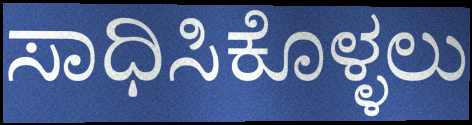
ಸಾಧಿಸಿಕೊಳ್ಳಲು